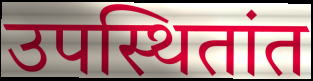
उपस्थितांत